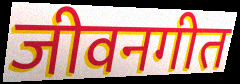
जीवनगीत